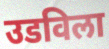
उडविला